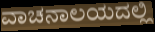
ವಾಚನಾಲಯದಲ್ಲಿ